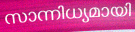
സാന്നിധ്യമായി